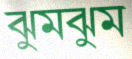
ঝুমঝুম